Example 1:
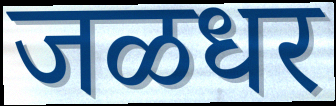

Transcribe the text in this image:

जळधर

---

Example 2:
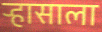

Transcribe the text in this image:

ऱ्हासाला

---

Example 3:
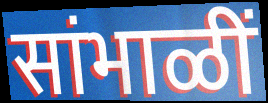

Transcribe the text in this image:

सांभाळीं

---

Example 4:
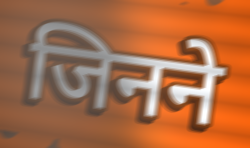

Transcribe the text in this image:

जिनने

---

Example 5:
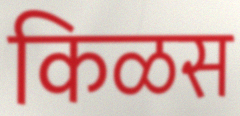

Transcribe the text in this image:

किळस